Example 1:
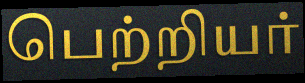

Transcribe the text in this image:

பெற்றியர்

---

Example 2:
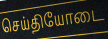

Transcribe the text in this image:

செய்தியோடை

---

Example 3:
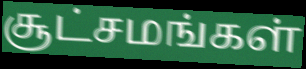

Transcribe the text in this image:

சூட்சமங்கள்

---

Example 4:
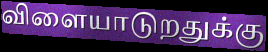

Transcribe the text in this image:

விளையாடுறதுக்கு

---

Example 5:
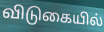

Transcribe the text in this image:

விடுகையில்